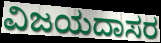
ವಿಜಯದಾಸರ